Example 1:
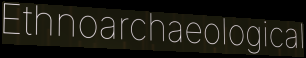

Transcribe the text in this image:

Ethnoarchaeological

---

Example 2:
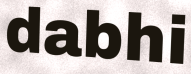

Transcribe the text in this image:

dabhi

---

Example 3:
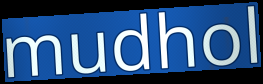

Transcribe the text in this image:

mudhol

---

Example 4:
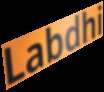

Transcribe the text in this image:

Labdhi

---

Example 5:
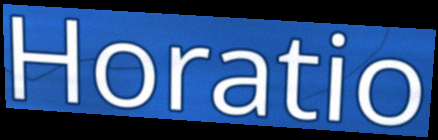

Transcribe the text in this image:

Horatio